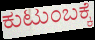
ಕುಟುಂಬಕ್ಕೆ